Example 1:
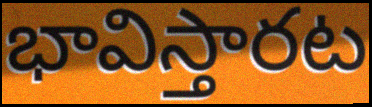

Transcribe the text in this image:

భావిస్తారట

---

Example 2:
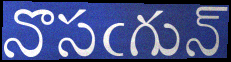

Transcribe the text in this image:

నొసఁగున్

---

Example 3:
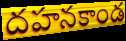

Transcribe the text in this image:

దహనకాండ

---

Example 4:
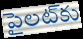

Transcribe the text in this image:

పైలట్‌కు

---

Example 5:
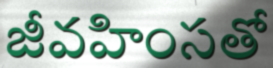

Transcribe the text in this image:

జీవహింసతో